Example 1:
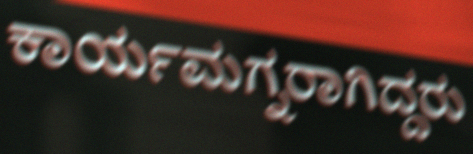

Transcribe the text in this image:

ಕಾರ್ಯಮಗ್ನರಾಗಿದ್ದರು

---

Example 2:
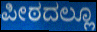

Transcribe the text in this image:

ಪೀಠದಲ್ಲೂ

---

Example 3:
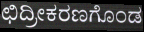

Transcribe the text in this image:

ಛಿದ್ರೀಕರಣಗೊಂಡ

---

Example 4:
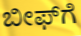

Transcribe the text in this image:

ಬೀಫ್‌ಗೆ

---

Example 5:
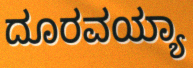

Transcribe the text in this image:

ದೂರವಯ್ಯಾ